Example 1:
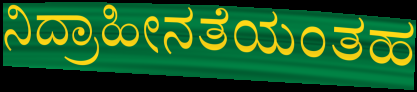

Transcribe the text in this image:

ನಿದ್ರಾಹೀನತೆಯಂತಹ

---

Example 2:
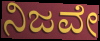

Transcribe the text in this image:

ನಿಜವೇ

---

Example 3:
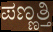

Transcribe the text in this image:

ಪಣ್ಣತ್ತಿ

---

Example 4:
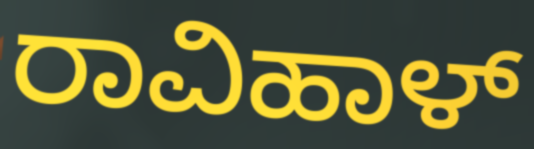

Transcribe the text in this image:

ರಾವಿಹಾಳ್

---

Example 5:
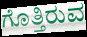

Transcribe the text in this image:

ಗೊತ್ತಿರುವ